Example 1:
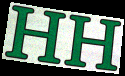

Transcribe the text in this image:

HH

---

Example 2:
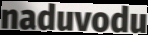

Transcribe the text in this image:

naduvodu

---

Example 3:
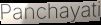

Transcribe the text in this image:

Panchayati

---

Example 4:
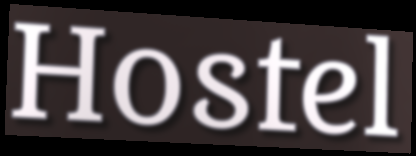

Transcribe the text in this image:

Hostel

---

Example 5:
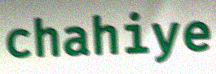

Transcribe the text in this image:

chahiye